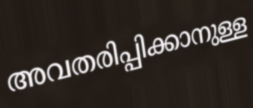
അവതരിപ്പിക്കാനുള്ള